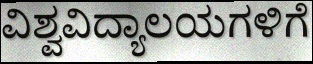
ವಿಶ್ವವಿದ್ಯಾಲಯಗಳಿಗೆ